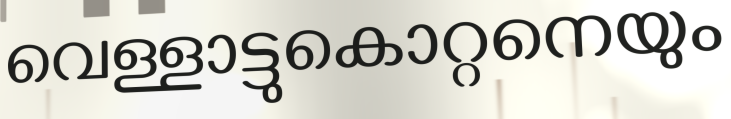
വെള്ളാട്ടുകൊറ്റനെയും